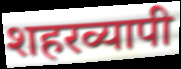
शहरव्यापी